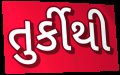
તુર્કીથી